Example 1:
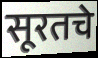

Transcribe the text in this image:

सूरतचे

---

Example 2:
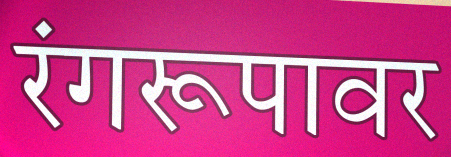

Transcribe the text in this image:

रंगरूपावर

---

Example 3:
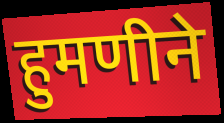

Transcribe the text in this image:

हुमणीने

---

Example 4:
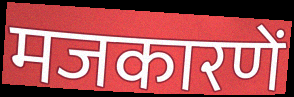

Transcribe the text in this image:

मजकारणें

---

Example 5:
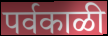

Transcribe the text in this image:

पर्वकाळी